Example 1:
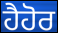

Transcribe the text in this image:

ਹੈਹੋਰ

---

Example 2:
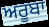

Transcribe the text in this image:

ਅਰੂਬਾ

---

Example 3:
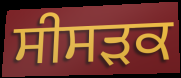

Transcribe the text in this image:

ਸੀਸੜਕ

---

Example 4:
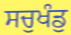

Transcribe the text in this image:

ਸਚੁਖੰਡੁ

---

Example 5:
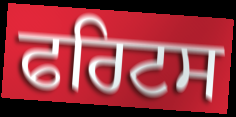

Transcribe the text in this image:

ਫਰਿਟਸ